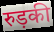
रुड़की